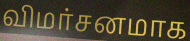
விமர்சனமாக